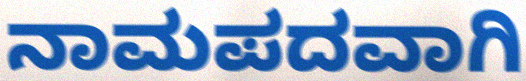
ನಾಮಪದವಾಗಿ